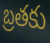
బ్రతకు